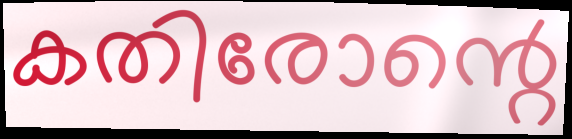
കതിരോന്റെ